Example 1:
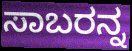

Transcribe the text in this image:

ಸಾಬರನ್ನ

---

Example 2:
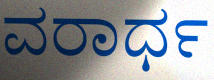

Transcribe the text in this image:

ವರಾರ್ಧ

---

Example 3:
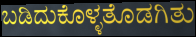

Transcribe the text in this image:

ಬಡಿದುಕೊಳ್ಳತೊಡಗಿತು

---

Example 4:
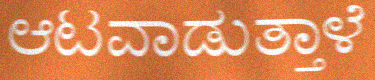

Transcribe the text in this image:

ಆಟವಾಡುತ್ತಾಳೆ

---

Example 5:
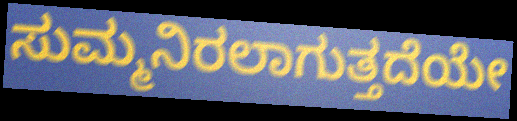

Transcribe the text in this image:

ಸುಮ್ಮನಿರಲಾಗುತ್ತದೆಯೇ